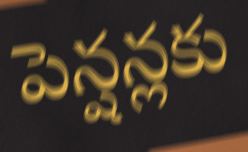
పెన్షన్లకు